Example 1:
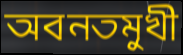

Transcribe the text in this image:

অবনতমুখী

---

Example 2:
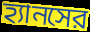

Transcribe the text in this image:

হ্যানসের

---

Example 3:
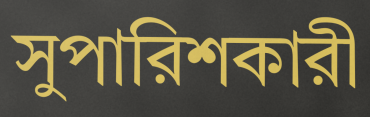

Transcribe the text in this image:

সুপারিশকারী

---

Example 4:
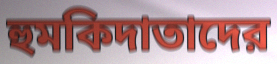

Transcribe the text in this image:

হুমকিদাতাদের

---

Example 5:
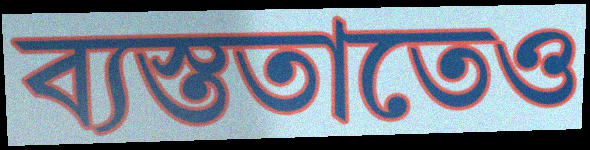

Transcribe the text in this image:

ব্যস্ততাতেও